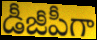
డీజీపీగా